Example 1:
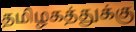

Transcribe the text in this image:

தமிழகத்துக்கு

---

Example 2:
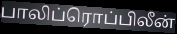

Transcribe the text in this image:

பாலிப்ரொப்பிலீன்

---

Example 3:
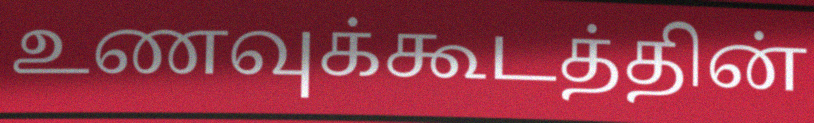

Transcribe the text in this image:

உணவுக்கூடத்தின்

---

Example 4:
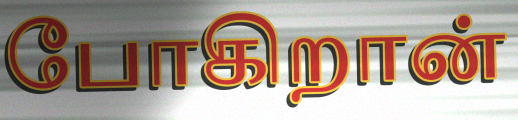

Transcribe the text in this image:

போகிறான்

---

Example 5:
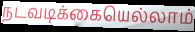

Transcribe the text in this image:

நடவடிக்கையெல்லாம்